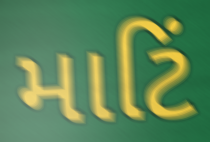
માટિં